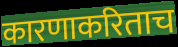
कारणाकरिताच